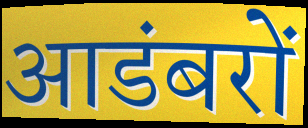
आडंबरों